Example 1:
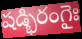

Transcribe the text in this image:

షడ్భిరంగైః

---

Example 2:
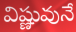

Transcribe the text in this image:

విష్ణువునే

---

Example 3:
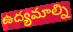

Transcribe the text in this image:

ఉద్యమాల్ని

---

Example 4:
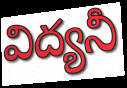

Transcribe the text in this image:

విద్యనీ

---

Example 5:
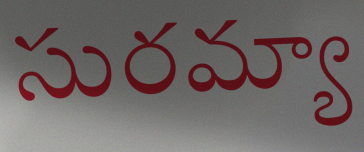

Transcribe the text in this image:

సురమ్యా